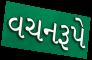
વચનરૂપે